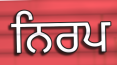
ਨਿਰਪ